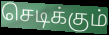
செடிக்கும்